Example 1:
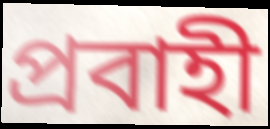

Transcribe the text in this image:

প্রবাহী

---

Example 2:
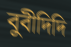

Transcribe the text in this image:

বুবীদিদি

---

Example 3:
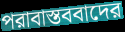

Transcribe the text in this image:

পরাবাস্তববাদের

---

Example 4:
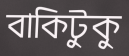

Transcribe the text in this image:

বাকিটুকু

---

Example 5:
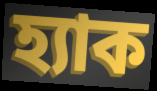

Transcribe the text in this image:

হ্যাক